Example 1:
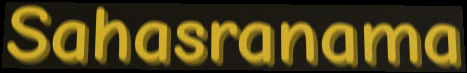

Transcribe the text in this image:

Sahasranama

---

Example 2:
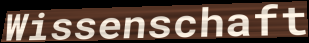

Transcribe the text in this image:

Wissenschaft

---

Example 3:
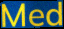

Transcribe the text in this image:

Med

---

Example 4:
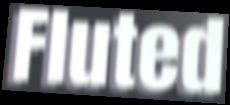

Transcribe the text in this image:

Fluted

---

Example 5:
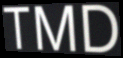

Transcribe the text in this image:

TMD